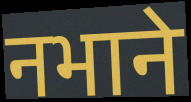
नभाने